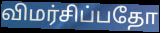
விமர்சிப்பதோ